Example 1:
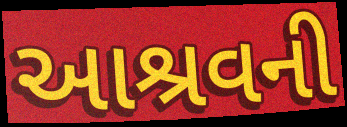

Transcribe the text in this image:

આશ્રવની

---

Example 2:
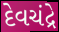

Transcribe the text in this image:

દેવચંદ્રે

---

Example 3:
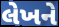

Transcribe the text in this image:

લેખને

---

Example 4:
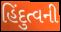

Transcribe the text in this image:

હિંદુત્વની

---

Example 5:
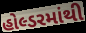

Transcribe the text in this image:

હોલ્ડરમાંથી